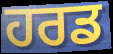
ਹਰਡ